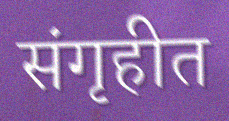
संगृहीत